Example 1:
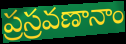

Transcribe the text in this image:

ప్రస్రవణానాం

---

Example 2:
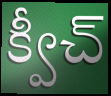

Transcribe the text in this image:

క్వీచ్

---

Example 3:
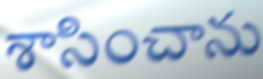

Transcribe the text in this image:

శాసించాను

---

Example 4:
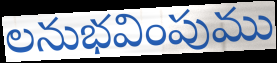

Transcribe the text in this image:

లనుభవింపుము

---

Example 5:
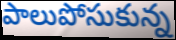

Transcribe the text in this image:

పాలుపోసుకున్న